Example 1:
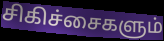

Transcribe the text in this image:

சிகிச்சைகளும்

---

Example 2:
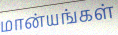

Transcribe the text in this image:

மான்யங்கள்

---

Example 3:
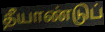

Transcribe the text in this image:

தீயாண்டுப்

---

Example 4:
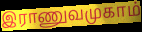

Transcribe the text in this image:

இராணுவமுகாம்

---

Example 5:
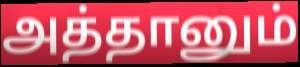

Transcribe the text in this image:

அத்தானும்